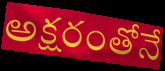
అక్షరంతోనే